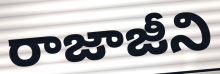
రాజాజీని